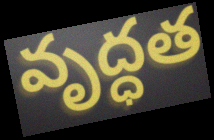
వృద్ధత